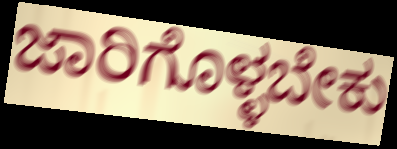
ಜಾರಿಗೊಳ್ಳಬೇಕು